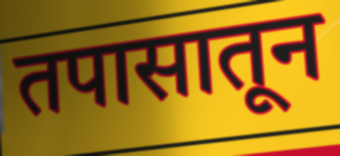
तपासातून